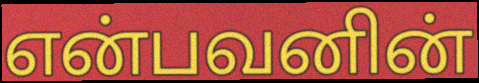
என்பவனின்